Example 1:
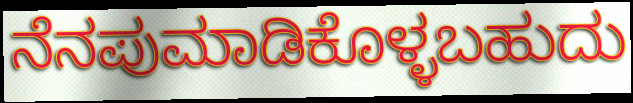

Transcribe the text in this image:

ನೆನಪುಮಾಡಿಕೊಳ್ಳಬಹುದು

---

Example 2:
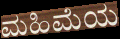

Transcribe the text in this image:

ಮಹಿಮೆಯ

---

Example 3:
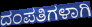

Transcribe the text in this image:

ದಂಪತಿಗಳಾಗಿ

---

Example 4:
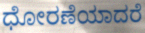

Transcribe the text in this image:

ಧೋರಣೆಯಾದರೆ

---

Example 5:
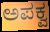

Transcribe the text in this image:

ಅಪಕ್ವ